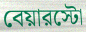
বেয়ারস্টো